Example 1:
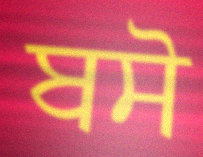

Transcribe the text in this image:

ਬਸੋ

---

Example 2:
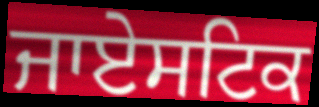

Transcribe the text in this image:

ਜਾਏਸਟਿਕ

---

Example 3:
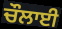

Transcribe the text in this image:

ਚੌਲਾਈ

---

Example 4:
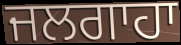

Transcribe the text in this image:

ਜਲਗਾਹਾ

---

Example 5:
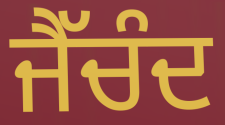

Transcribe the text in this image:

ਜੈੱਚੰਦ